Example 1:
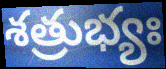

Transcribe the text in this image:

శత్రుభ్యః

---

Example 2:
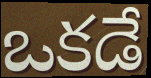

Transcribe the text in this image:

ఒకడే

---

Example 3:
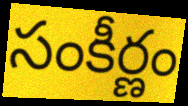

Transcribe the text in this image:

సంకీర్ణం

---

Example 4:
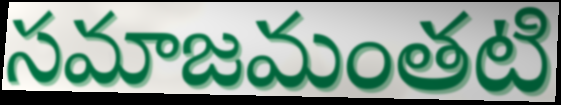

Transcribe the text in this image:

సమాజమంతటి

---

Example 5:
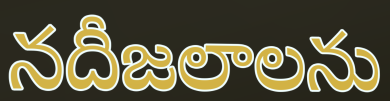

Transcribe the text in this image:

నదీజలాలను